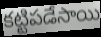
కట్టిపడేసాయి